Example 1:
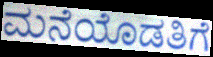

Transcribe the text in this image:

ಮನೆಯೊಡತಿಗೆ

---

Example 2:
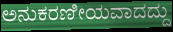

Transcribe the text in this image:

ಅನುಕರಣೀಯವಾದದ್ದು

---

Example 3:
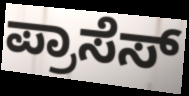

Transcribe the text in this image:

ಪ್ರಾಸೆಸ್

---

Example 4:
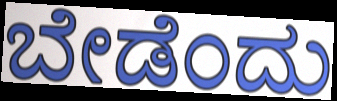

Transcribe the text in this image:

ಬೇಡೆಂದು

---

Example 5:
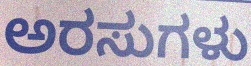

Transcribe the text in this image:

ಅರಸುಗಳು